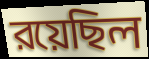
রয়েছিল